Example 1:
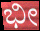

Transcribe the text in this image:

ಭೀ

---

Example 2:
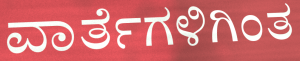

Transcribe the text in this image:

ವಾರ್ತೆಗಳಿಗಿಂತ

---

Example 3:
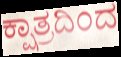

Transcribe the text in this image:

ಕ್ಷಾತ್ರದಿಂದ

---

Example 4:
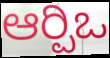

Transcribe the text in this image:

ಆರ್‍ಪಿಒ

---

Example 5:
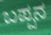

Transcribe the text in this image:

ಬಪ್ಪನ